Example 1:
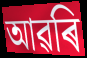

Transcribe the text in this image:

আৱৰি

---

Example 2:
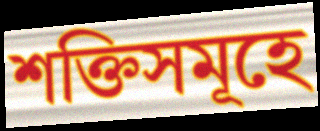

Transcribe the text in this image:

শক্তিসমূহে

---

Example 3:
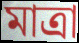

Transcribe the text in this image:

মাত্ৰা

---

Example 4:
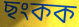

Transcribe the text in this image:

ছংকক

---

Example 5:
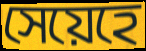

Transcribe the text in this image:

সেয়েহে